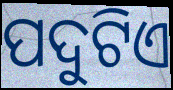
ପଦୁଟିଏ